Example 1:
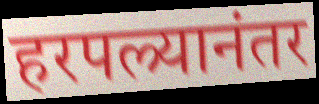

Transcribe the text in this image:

हरपल्यानंतर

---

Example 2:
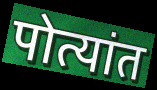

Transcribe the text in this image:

पोत्यांत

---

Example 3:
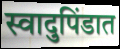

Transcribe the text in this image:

स्वादुपिंडात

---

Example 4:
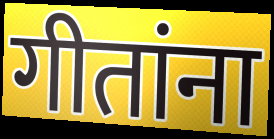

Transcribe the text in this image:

गीतांना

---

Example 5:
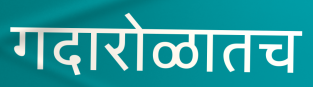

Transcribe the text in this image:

गदारोळातच